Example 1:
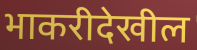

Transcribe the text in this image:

भाकरीदेखील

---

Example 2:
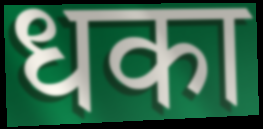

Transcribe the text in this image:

धका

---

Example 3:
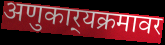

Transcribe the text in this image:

अणुकार्यक्रमावर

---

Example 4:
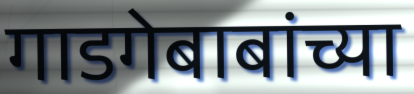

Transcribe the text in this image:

गाडगेबाबांच्या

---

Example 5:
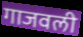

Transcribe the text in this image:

गाजवली